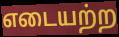
எடையற்ற